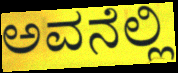
ಅವನೆಲ್ಲಿ